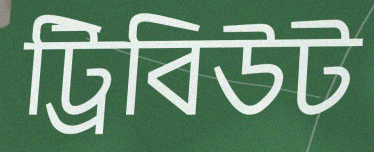
ট্রিবিউট